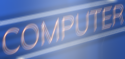
COMPUTER